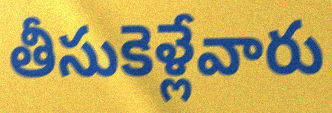
తీసుకెళ్లేవారు